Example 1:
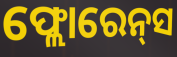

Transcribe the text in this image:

ଫ୍ଲୋରେନ୍‌ସ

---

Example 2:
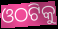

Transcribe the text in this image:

ଓଠଟିକୁ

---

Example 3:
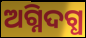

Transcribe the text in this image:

ଅଗ୍ନିଦଗ୍ଧ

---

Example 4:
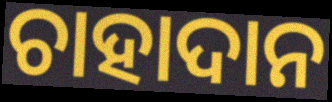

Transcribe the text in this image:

ଚାହାଦାନ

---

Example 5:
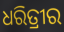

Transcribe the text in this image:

ଧରିତ୍ରୀର